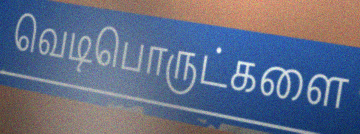
வெடிபொருட்களை